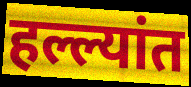
हल्ल्यांत